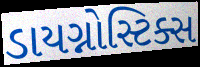
ડાયગ્નોસ્ટિક્સ